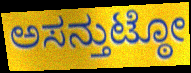
ಅಸನ್ತುಟ್ಠೋ